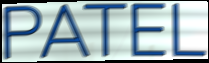
PATEL